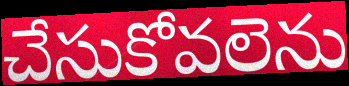
చేసుకోవలెను